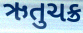
ઋતુચક્ર